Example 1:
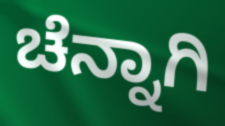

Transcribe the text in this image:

ಚೆನ್ನಾಗಿ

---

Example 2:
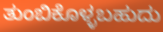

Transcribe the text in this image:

ತುಂಬಿಕೊಳ್ಳಬಹುದು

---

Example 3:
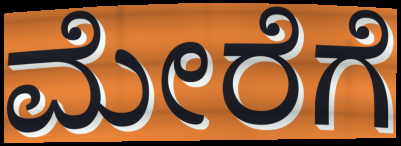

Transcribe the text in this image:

ಮೇರೆಗೆ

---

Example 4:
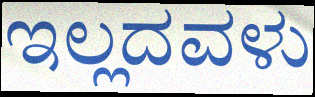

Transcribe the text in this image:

ಇಲ್ಲದವಳು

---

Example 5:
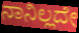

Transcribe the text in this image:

ನಾನಿಲ್ಲದೇ